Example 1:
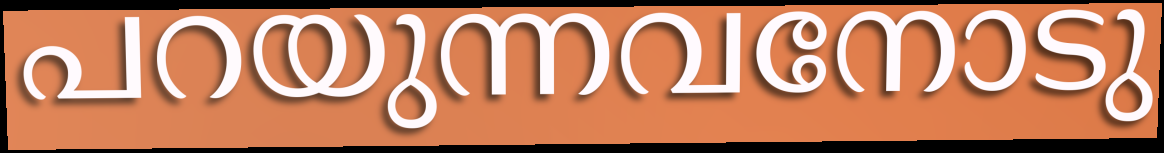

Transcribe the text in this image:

പറയുന്നവനോടു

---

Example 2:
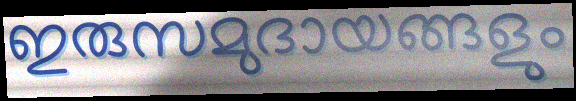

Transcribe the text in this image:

ഇരുസമുദായങ്ങളും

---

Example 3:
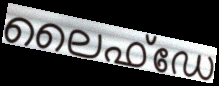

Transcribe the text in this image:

ലൈഫ്ഡേ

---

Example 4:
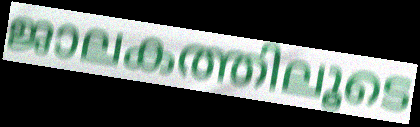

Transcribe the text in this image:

ജാലകത്തിലൂടെ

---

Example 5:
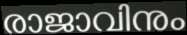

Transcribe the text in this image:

രാജാവിനും